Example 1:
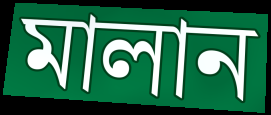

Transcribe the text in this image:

মালান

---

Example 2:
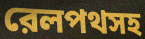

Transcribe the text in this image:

রেলপথসহ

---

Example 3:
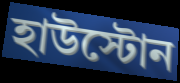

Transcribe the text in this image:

হাউস্টোন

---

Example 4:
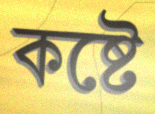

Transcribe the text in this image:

কষ্টে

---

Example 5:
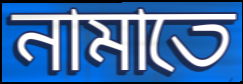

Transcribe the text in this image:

নামাতে